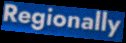
Regionally